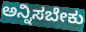
ಅನ್ನಿಸಬೇಕು